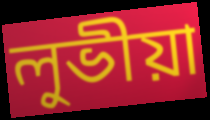
লুভীয়া